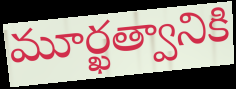
మూర్ఖత్వానికి